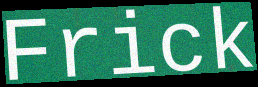
Frick